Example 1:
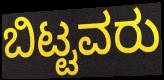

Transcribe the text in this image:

ಬಿಟ್ಟವರು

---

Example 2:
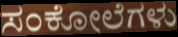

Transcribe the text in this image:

ಸಂಕೋಲೆಗಳು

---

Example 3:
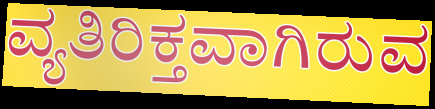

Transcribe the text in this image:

ವ್ಯತಿರಿಕ್ತವಾಗಿರುವ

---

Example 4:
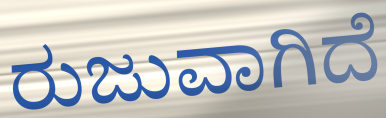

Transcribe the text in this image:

ರುಜುವಾಗಿದೆ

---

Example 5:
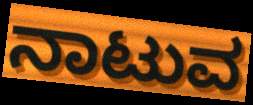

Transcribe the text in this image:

ನಾಟುವ